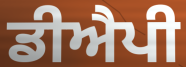
ਡੀਐਪੀ